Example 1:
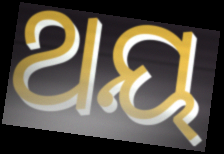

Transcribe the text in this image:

ଥୟ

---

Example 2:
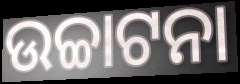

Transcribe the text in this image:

ଉଚ୍ଚାଟନା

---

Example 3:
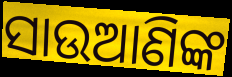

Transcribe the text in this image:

ସାଉଆଣିଙ୍କ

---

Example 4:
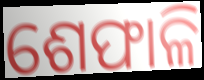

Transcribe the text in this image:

ଶେଫାଳି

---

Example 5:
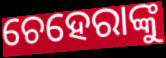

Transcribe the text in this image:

ଚେହେରାଙ୍କୁ